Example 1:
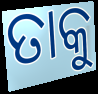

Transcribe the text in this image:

ତାକୁ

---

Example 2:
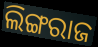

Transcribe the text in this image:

ଲିଙ୍ଗରାଜ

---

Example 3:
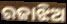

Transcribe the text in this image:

ରଜାଝିଅ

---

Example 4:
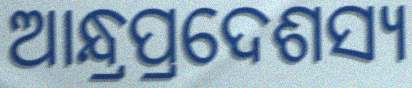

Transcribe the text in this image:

ଆନ୍ଧ୍ରପ୍ରଦେଶସ୍ୟ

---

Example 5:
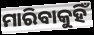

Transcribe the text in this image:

ମାରିବାକୁହିଁ